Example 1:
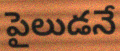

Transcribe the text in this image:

పైలుడనే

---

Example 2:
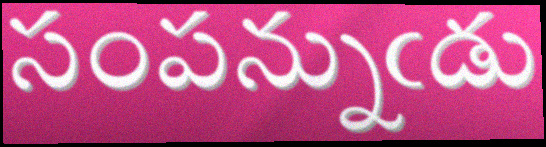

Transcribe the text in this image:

సంపన్నుఁడు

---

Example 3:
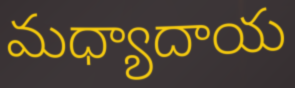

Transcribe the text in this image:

మధ్యాదాయ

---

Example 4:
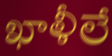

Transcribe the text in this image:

ఖాళీలే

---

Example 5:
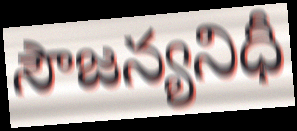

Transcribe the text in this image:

సౌజన్యనిధీ